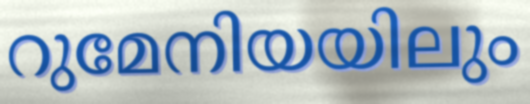
റുമേനിയയിലും